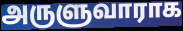
அருளுவாராக